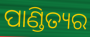
ପାଣ୍ଡିତ୍ୟର